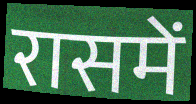
रासमें